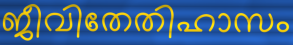
ജീവിതേതിഹാസം